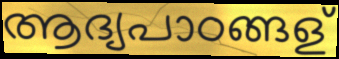
ആദ്യപാഠങ്ങള്